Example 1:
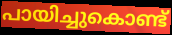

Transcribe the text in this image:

പായിച്ചുകൊണ്ട്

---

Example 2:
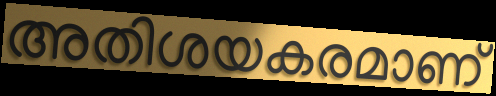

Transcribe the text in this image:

അതിശയകരമാണ്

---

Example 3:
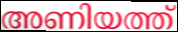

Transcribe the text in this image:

അണിയത്ത്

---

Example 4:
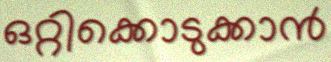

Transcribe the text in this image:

ഒറ്റിക്കൊടുക്കാൻ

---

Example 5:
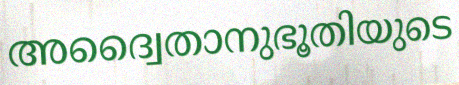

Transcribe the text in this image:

അദ്വൈതാനുഭൂതിയുടെ